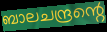
ബാലചന്ദ്രന്റെ